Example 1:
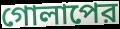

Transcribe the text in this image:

গোলাপের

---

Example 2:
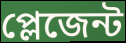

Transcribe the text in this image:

প্লেজেন্ট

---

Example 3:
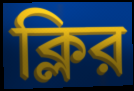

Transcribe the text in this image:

ক্লির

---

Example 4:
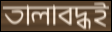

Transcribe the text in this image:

তালাবদ্ধই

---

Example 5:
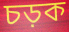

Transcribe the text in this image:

চড়ক